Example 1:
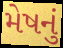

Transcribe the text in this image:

મેષનું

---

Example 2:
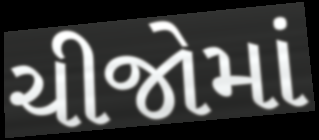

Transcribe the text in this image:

ચીજોમાં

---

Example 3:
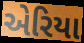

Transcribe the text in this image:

એરિયા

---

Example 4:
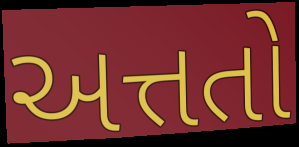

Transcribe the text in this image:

અત્તતો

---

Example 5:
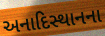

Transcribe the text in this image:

અનાદિસ્થાનના